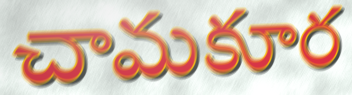
చామకూర